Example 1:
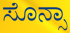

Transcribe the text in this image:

ಸೊನ್ಸಾ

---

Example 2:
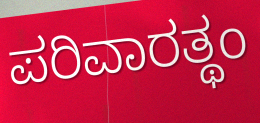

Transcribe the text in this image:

ಪರಿವಾರತ್ಥಂ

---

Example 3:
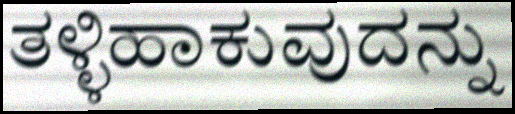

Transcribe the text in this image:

ತಳ್ಳಿಹಾಕುವುದನ್ನು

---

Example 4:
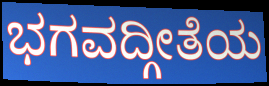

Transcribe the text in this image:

ಭಗವದ್ಗೀತೆಯ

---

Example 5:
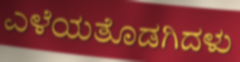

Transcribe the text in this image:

ಎಳೆಯತೊಡಗಿದಳು